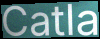
Catla